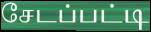
சேடப்பட்டி